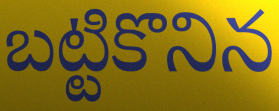
బట్టికొనిన